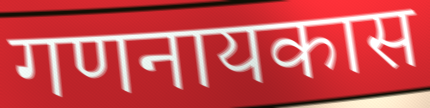
गणनायकास